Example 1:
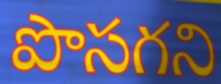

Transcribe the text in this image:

పొసగని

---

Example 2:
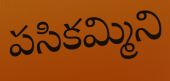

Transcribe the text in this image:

పసికమ్మిని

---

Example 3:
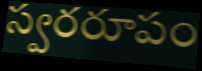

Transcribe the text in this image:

స్వరరూపం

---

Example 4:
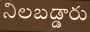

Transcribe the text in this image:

నిలబడ్డారు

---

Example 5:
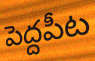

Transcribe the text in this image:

పెద్దపీట